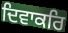
ਦਿਵਾਕਰਿ